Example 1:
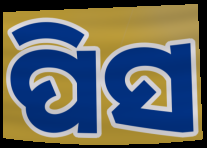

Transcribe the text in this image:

ପିସ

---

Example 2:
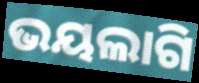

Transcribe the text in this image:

ଭୟଲାଗି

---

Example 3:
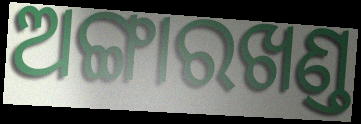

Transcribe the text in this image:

ଅଙ୍ଗାରଖଣ୍ଡ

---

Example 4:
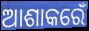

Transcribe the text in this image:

ଆଶାକରେଁ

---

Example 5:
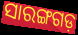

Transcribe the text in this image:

ସାରଙ୍ଗଗଡ଼